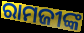
ରାମଜୀଙ୍କ